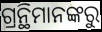
ଗ୍ରନ୍ଥିମାନଙ୍କରୁ